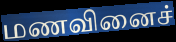
மணவினைச்